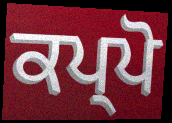
ਕਪ੍ਪੋ